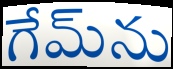
గేమ్‌ను